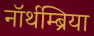
नॉर्थम्ब्रिया